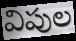
విపుల